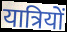
यात्रियों